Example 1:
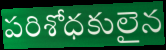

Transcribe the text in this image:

పరిశోధకులైన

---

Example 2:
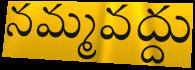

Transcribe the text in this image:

నమ్మవద్దు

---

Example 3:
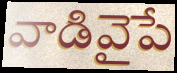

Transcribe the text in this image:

వాడివైపే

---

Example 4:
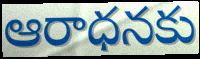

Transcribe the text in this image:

ఆరాధనకు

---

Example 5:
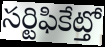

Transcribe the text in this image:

సర్టిఫికేట్తో